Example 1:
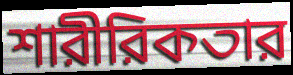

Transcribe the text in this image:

শারীরিকতার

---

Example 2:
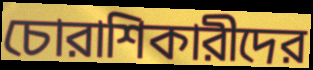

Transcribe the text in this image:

চোরাশিকারীদের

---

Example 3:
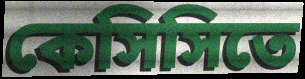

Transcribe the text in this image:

কেসিসিতে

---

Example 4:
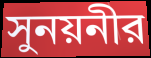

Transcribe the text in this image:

সুনয়নীর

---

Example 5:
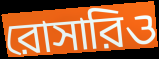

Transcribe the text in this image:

রোসারিও